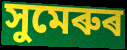
সুমেৰুৰ